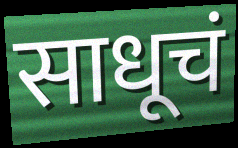
साधूचं